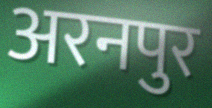
अरनपुर